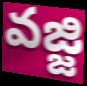
వజ్జి